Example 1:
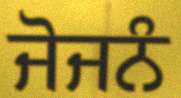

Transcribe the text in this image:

ਜੋਜਨੰ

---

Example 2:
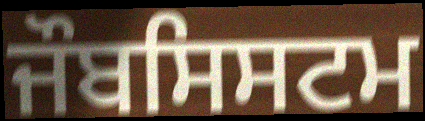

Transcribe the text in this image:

ਜੌਬਸਿਸਟਮ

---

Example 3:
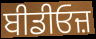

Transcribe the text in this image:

ਬੀਡੀਓਜ਼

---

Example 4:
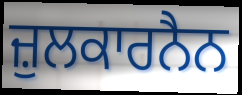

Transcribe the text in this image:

ਜ਼ੁਲਕਾਰਨੈਨ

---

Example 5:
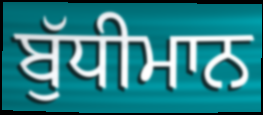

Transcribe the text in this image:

ਬੁੱਧੀਮਾਨ